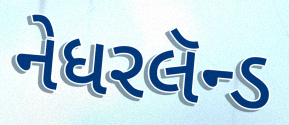
નેધરલૅન્ડ